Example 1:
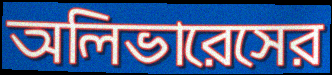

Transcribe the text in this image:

অলিভারেসের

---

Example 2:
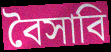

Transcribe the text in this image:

বৈসাবি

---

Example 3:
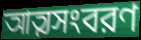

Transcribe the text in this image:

আত্মসংবরণ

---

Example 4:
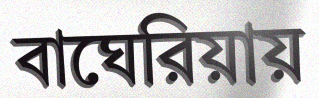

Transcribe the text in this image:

বাঘেরিয়ায়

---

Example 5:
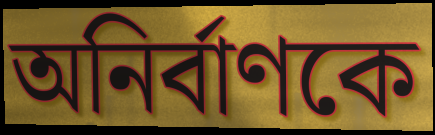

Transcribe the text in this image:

অনির্বাণকে